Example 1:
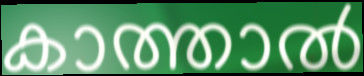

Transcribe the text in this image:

കാത്താൽ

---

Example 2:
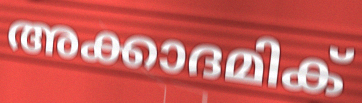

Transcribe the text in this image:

അക്കാദമിക്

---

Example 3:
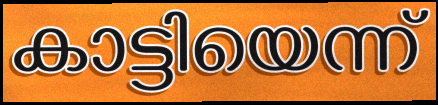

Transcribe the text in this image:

കാട്ടിയെന്ന്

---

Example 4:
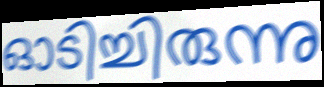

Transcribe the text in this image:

ഓടിച്ചിരുന്നു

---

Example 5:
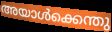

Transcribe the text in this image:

അയാൾക്കെന്തു